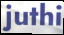
juthi